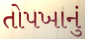
તોપખાનું